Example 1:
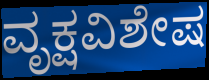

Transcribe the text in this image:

ವೃಕ್ಷವಿಶೇಷ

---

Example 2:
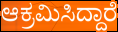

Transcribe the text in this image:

ಆಕ್ರಮಿಸಿದ್ದಾರೆ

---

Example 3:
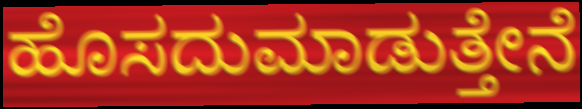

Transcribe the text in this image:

ಹೊಸದುಮಾಡುತ್ತೇನೆ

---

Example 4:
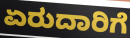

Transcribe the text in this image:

ಏರುದಾರಿಗೆ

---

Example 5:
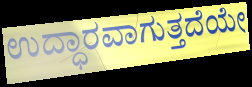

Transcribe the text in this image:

ಉದ್ಧಾರವಾಗುತ್ತದೆಯೇ